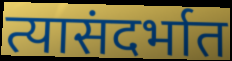
त्यासंदर्भात